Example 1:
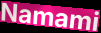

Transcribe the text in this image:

Namami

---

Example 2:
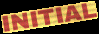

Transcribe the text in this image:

INITIAL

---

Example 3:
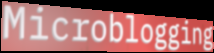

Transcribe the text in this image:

Microblogging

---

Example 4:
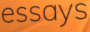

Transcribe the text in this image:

essays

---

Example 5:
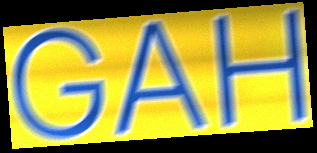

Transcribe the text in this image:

GAH